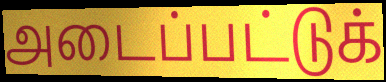
அடைப்பட்டுக்